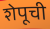
शेपूची